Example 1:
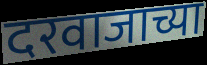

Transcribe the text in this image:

दरवाजाच्या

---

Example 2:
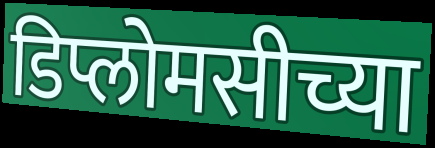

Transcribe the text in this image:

डिप्लोमसीच्या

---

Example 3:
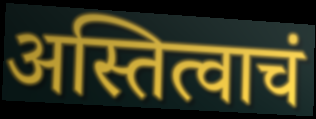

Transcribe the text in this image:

अस्तित्वाचं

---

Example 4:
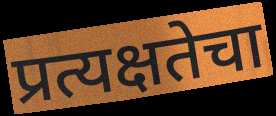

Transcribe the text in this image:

प्रत्यक्षतेचा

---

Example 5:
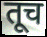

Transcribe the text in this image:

तूच